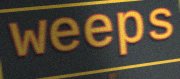
weeps